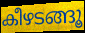
കീഴടങ്ങൂ